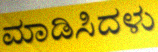
ಮಾಡಿಸಿದಳು